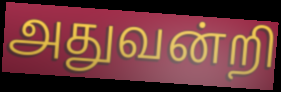
அதுவன்றி